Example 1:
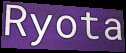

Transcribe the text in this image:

Ryota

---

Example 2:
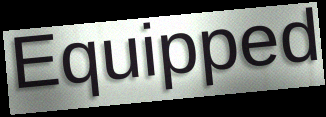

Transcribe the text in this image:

Equipped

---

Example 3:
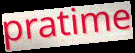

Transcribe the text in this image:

pratime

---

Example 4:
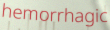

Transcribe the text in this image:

hemorrhagic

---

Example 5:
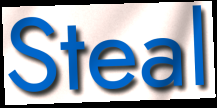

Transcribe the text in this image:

Steal